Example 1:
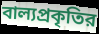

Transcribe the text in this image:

বাল্যপ্রকৃতির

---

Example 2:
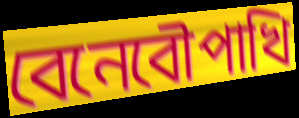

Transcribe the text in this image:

বেনেবৌপাখি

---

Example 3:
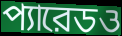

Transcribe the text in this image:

প্যারেডও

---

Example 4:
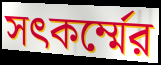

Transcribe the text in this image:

সৎকর্ম্মের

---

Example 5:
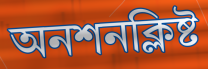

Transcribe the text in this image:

অনশনক্লিষ্ট